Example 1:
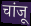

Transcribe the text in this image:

चांजू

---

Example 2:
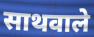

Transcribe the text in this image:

साथवाले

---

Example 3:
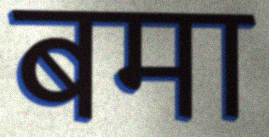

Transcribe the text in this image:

बमा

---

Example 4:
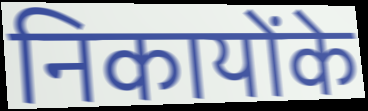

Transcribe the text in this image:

निकायोंके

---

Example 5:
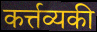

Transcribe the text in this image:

कर्त्तव्यकी